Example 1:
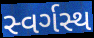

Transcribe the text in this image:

સ્વર્ગસ્થ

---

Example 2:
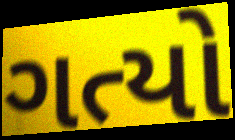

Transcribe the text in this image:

ગત્યો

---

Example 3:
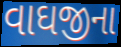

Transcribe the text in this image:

વાઘજીના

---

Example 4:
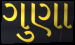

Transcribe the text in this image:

ગુણા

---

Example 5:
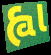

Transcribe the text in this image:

હ્વા